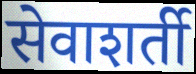
सेवाशर्ती